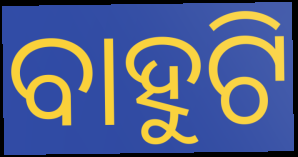
ବାହୁଟି